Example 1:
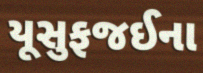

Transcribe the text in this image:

યૂસુફજઈના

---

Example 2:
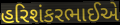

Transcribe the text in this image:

હરિશંકરભાઈએ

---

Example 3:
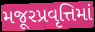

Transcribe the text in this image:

મજૂરપ્રવૃત્તિમાં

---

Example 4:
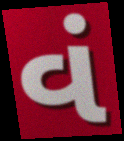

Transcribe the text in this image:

વં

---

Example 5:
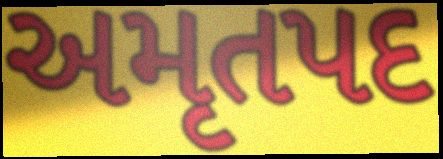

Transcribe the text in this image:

અમૃતપદ